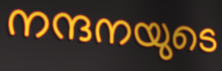
നന്ദനയുടെ